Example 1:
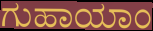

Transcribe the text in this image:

ಗುಹಾಯಾಂ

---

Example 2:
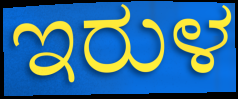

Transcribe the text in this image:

ಇರುಳ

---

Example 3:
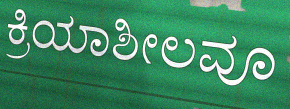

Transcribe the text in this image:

ಕ್ರಿಯಾಶೀಲವೂ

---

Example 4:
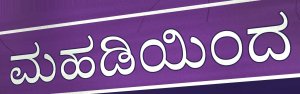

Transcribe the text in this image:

ಮಹಡಿಯಿಂದ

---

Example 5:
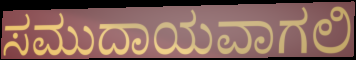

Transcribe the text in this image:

ಸಮುದಾಯವಾಗಲಿ